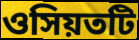
ওসিয়তটি